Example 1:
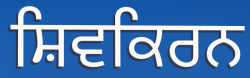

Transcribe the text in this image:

ਸ਼ਿਵਕਿਰਨ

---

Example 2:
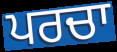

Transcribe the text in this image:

ਪਰਚਾ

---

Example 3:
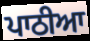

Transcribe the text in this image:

ਪਾਠੀਆ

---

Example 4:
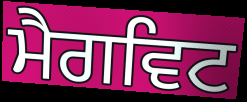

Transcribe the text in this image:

ਮੈਗਵਿਟ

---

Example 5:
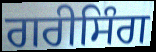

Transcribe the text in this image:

ਗਰੀਸਿੰਗ